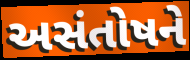
અસંતોષને